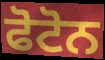
ਫੋਟੋਨ